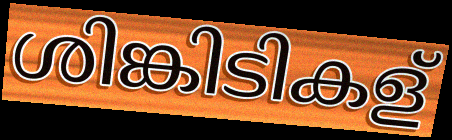
ശിങ്കിടികള്